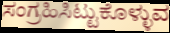
ಸಂಗ್ರಹಿಸಿಟ್ಟುಕೊಳ್ಳುವ